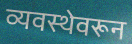
व्यवस्थेवरून